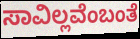
ಸಾವಿಲ್ಲವೆಂಬಂತೆ